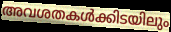
അവശതകൾക്കിടയിലും